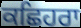
ਕਛਿਹਰਾ